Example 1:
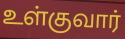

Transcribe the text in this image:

உள்குவார்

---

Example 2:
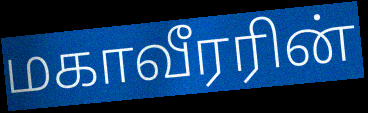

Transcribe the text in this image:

மகாவீரரின்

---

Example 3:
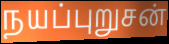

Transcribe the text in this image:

நயப்புறுசன்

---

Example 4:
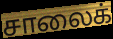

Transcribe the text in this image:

சாலைக்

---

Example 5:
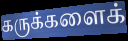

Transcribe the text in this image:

கருக்களைக்